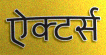
ऐक्‍टर्स